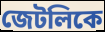
জেটলিকে